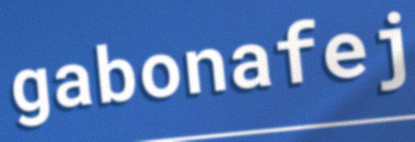
gabonafej